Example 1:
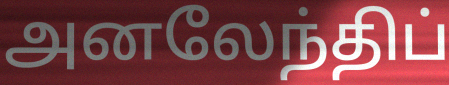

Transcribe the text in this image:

அனலேந்திப்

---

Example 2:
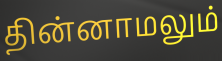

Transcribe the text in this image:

தின்னாமலும்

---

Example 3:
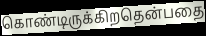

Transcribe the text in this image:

கொண்டிருக்கிறதென்பதை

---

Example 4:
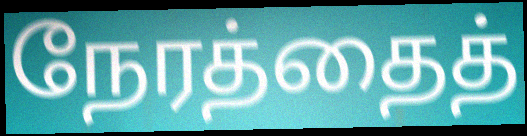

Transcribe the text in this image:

நேரத்தைத்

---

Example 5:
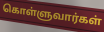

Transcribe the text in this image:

கொள்ளுவார்கள்